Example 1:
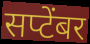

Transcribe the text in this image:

सप्टेंबर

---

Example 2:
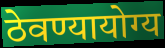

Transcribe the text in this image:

ठेवण्यायोग्य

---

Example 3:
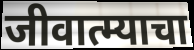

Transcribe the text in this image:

जीवात्म्याचा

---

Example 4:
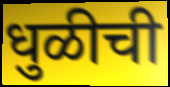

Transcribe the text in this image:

धुळीची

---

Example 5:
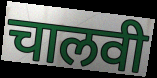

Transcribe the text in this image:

चालवी